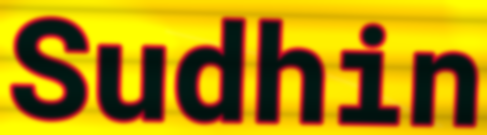
Sudhin